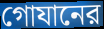
গোযানের